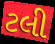
ટલી